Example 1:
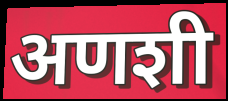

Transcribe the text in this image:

अणशी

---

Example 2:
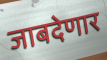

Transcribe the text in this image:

जाबदेणार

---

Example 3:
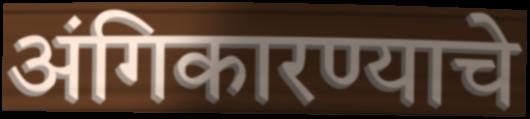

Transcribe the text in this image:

अंगिकारण्याचे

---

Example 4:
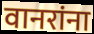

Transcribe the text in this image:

वानरांना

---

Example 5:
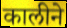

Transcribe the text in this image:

कालीने